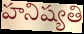
హనిష్యతి